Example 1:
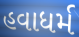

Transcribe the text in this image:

હવાધર્મ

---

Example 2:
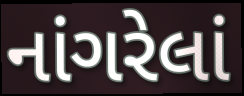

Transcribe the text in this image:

નાંગરેલાં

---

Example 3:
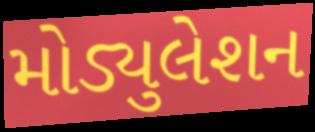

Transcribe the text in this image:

મોડ્યુલેશન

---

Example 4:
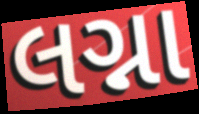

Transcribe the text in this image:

લગ્ના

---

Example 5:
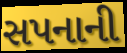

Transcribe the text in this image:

સપનાની